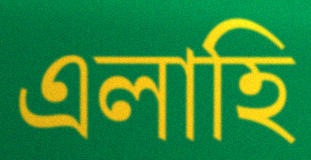
এলাহি